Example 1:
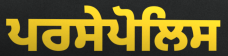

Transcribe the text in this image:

ਪਰਸੇਪੋਲਿਸ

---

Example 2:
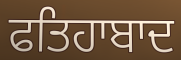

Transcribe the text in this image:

ਫਤਿਹਾਬਾਦ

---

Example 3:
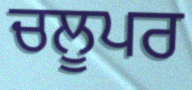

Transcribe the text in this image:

ਚਲੂਪਰ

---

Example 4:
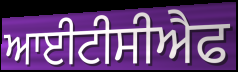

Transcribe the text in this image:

ਆਈਟੀਸੀਐਫ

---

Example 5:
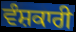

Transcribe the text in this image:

ਵੰਸ਼ਕਾਰੀ